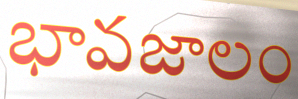
భావజాలం